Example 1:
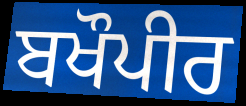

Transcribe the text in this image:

ਬਖੌਪੀਰ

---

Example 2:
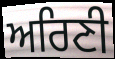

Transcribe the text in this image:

ਅਰਿਣੀ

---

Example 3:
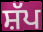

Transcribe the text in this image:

ਸ਼ੱਪ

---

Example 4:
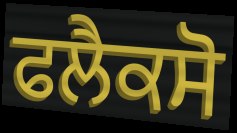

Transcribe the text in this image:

ਫਲੈਕਸੋ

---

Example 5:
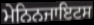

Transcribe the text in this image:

ਮੇਨਿਨਜਾਇਟਸ